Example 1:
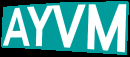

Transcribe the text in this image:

AYVM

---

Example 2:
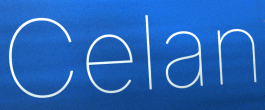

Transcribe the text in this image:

Celan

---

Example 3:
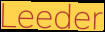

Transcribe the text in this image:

Leeder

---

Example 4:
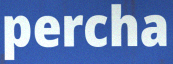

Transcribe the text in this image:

percha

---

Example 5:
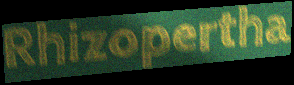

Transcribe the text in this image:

Rhizopertha